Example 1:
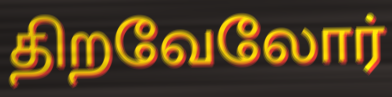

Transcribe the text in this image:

திறவேலோர்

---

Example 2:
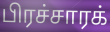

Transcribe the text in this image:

பிரச்சாரக்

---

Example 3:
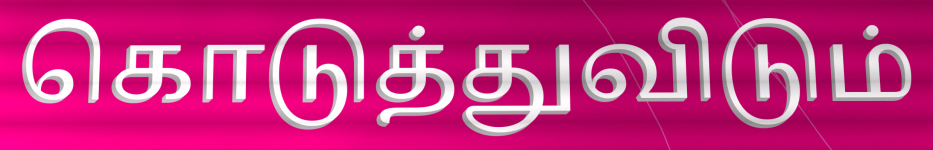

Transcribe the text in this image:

கொடுத்துவிடும்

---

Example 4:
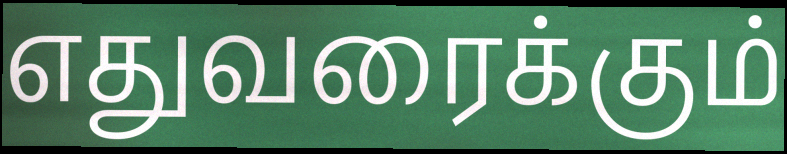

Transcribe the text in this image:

எதுவரைக்கும்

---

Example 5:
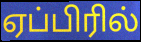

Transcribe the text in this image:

ஏப்பிரில்